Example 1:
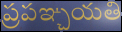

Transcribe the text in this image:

ప్రపఞ్చయతి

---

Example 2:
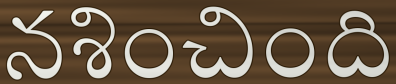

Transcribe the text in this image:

నశించింది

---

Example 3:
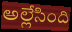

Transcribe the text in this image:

అల్లేసింది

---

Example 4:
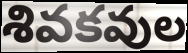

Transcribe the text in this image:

శివకవుల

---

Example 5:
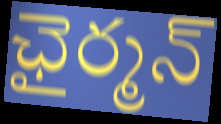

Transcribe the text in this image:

ఛైర్మన్